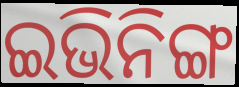
ଇଭିନିଙ୍ଗ